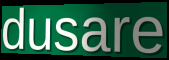
dusare